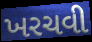
ખરચવી